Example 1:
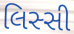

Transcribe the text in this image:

લિસ્સી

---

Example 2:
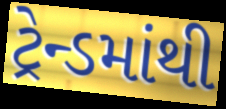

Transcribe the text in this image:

ટ્રેન્ડમાંથી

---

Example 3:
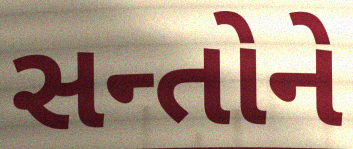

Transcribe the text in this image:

સન્તોને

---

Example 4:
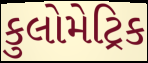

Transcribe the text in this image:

કુલોમેટ્રિક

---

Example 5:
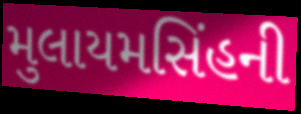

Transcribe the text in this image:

મુલાયમસિંહની